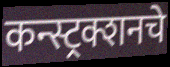
कन्स्ट्रक्शनचे